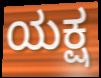
ಯಕ್ಷ